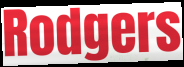
Rodgers